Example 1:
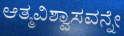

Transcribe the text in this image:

ಆತ್ಮವಿಶ್ವಾಸವನ್ನೇ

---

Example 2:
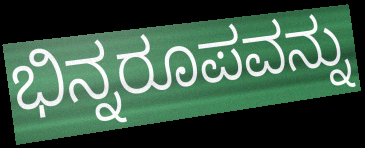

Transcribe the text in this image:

ಭಿನ್ನರೂಪವನ್ನು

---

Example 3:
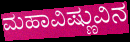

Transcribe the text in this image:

ಮಹಾವಿಷ್ಣುವಿನ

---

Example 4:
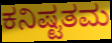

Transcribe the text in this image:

ಕನಿಷ್ಟತಮ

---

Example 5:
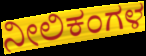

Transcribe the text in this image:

ನೀಲಿಕಂಗಳ